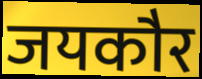
जयकौर